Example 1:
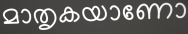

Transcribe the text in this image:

മാതൃകയാണോ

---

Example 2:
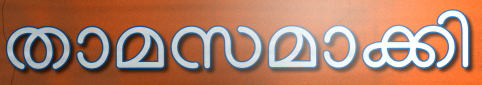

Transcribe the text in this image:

താമസമാക്കി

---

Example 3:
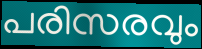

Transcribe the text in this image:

പരിസരവും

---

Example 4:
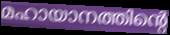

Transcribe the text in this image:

മഹായാനത്തിന്റെ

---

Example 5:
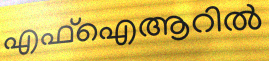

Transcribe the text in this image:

എഫ്ഐആറിൽ